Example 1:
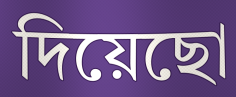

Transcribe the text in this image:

দিয়েছো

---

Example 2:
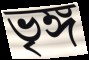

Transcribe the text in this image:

ভৃঙ্গ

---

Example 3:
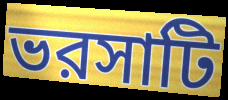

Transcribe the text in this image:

ভরসাটি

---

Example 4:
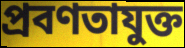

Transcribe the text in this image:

প্রবণতাযুক্ত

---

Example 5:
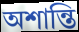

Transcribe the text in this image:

অশান্তি